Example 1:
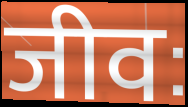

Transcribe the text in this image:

जीवः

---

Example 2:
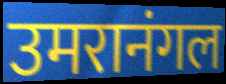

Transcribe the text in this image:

उमरानंगल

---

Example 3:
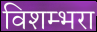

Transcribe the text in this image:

विशम्भरा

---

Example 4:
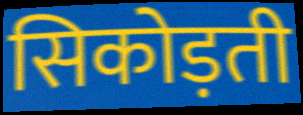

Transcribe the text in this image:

सिकोड़ती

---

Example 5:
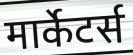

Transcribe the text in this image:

मार्केटर्स